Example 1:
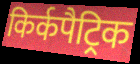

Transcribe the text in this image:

किर्कपैट्रिक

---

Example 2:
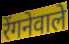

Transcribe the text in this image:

रेंगनेवाले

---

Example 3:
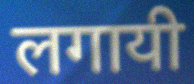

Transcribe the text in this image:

लगायी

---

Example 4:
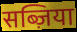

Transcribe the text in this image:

सब्ज़िया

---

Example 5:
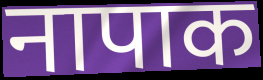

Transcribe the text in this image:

नापाक